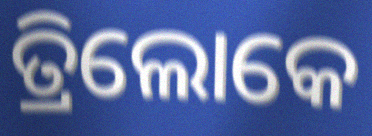
ତ୍ରିଲୋକେ